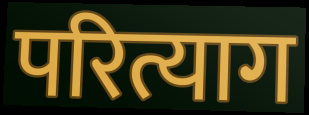
परित्याग